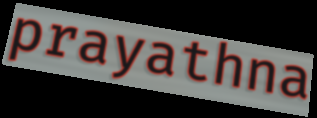
prayathna